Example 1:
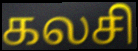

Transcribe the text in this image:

கலசி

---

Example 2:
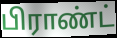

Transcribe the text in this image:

பிராண்ட்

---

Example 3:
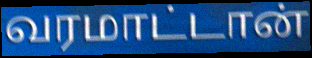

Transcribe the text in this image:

வரமாட்டான்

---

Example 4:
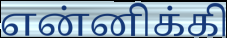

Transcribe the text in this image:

என்னிக்கி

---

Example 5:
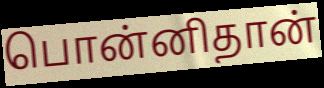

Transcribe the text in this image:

பொன்னிதான்